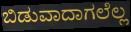
ಬಿಡುವಾದಾಗಲೆಲ್ಲ